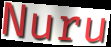
Nuru